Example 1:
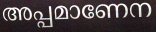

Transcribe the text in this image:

അപ്പമാണേന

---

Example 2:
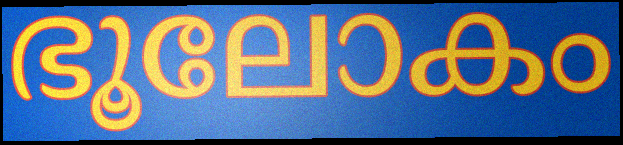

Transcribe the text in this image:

ഭൂലോകം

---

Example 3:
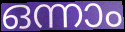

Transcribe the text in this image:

ഒന്നാം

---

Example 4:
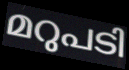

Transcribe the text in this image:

മറുപടി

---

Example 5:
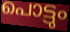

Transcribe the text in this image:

പൊട്ടും